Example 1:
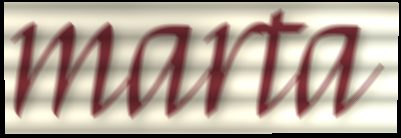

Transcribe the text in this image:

marta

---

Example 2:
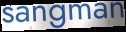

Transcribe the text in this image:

sangman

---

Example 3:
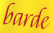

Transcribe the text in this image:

barde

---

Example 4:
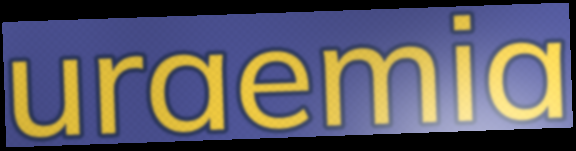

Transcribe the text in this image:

uraemia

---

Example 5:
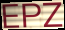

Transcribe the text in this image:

EPZ